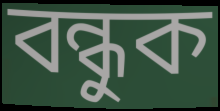
বন্ধুক